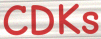
CDKs